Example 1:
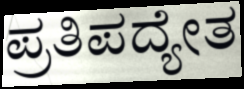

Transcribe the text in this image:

ಪ್ರತಿಪದ್ಯೇತ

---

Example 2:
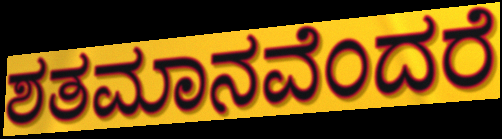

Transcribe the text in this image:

ಶತಮಾನವೆಂದರೆ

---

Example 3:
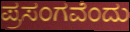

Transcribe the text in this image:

ಪ್ರಸಂಗವೆಂದು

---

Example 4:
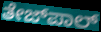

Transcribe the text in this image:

ತೇಜ್‌ಪಾಲ್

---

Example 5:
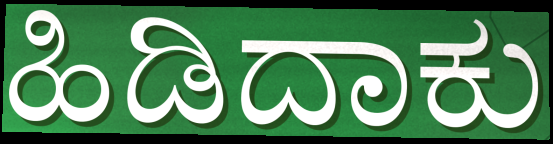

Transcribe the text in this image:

ಹಿಡಿದಾಕು